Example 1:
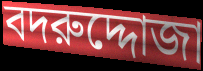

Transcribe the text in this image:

বদরুদ্দোজা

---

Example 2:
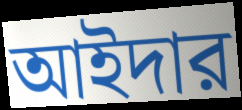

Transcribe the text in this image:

আইদার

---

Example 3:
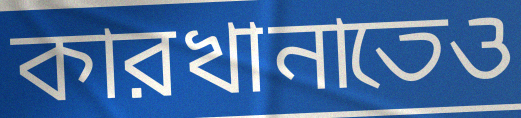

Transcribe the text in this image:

কারখানাতেও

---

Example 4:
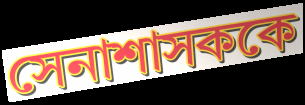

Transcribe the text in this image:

সেনাশাসককে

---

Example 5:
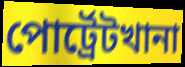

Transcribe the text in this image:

পোর্ট্রেটখানা